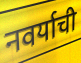
नवर्याची